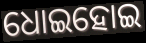
ଧୋଇହୋଇ